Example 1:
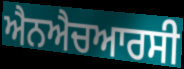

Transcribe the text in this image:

ਐਨਐਚਆਰਸੀ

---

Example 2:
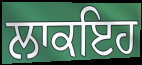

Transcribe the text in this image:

ਲਾਕਇਹ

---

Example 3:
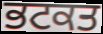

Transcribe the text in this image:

ਭਟਕਤ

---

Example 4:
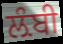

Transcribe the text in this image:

ਲ਼ੰਬੀ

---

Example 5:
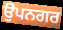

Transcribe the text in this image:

ਉਪਨਗਰ